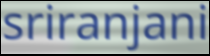
sriranjani